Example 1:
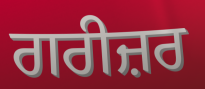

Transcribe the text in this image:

ਗਰੀਜ਼ਰ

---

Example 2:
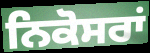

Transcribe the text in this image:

ਨਿਕੋਸਰਾਂ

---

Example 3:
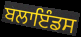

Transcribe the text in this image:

ਬਲਾਇੰਡਸ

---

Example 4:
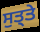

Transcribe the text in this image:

ਸੁਤ੍ਤੇ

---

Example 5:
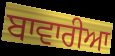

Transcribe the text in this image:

ਬਾਵਾਰੀਆ